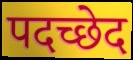
पदच्छेद